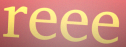
reee